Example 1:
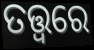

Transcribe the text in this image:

ତତ୍ତ୍ୱରେ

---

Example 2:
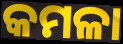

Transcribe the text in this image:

କମଳା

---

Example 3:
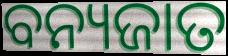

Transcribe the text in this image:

ବନ୍ୟଜାତ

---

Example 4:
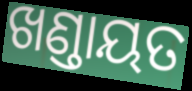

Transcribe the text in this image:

ଖଣ୍ଡାୟତ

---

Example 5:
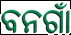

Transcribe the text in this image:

ବନଗାଁ